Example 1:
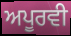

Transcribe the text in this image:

ਅਪੂਰਵੀ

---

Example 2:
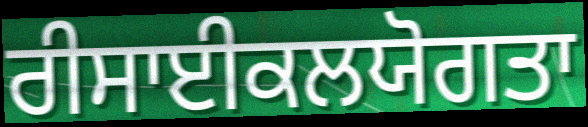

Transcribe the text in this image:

ਰੀਸਾਈਕਲਯੋਗਤਾ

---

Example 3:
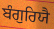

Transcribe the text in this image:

ਬੰਗੁਰਿਯੈ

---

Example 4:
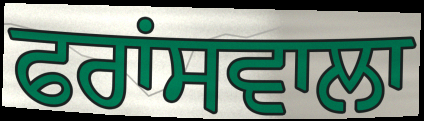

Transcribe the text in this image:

ਫਰਾਂਸਵਾਲਾ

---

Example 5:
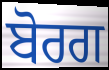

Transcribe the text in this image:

ਬੋਰਗ